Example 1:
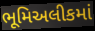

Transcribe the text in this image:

ભૂમિઅલીકમાં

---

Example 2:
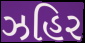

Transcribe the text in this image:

ઝહિર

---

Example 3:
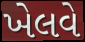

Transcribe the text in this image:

ખેલવે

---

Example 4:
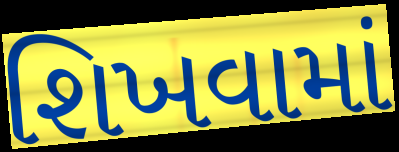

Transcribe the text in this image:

શિખવામાં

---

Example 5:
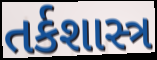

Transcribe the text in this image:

તર્કશાસ્ત્ર